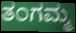
ತಂಗಮ್ಮ